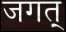
जगत्